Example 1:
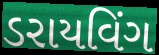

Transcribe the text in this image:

ડરાયવિંગ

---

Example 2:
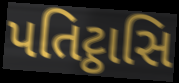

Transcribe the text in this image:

પતિટ્ઠાસિ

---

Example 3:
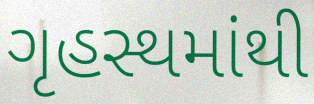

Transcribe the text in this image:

ગૃહસ્થમાંથી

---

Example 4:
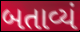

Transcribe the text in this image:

બતાવ્યં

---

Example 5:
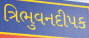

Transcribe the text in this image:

ત્રિભુવનદીપક